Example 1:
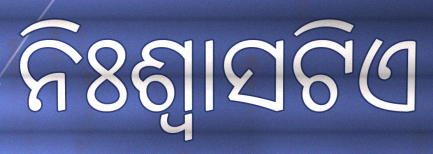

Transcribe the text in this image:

ନିଃଶ୍ୱାସଟିଏ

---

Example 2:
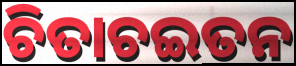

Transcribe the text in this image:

ଚିତାଚଇତନ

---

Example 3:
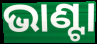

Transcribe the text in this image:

ଭାଣ୍ଟା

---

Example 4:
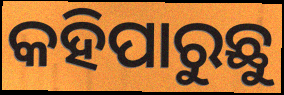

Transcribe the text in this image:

କହିପାରୁଛୁ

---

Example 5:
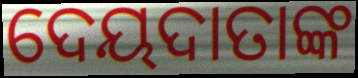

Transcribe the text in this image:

ଦେୟଦାତାଙ୍କ